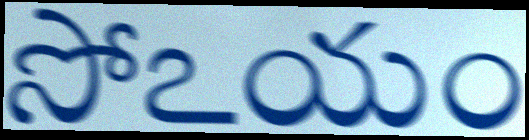
సోఽయం